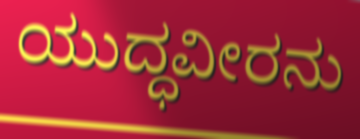
ಯುದ್ಧವೀರನು